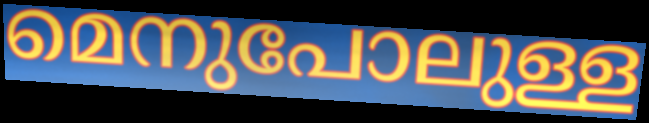
മെനുപോലുള്ള